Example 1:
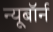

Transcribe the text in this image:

न्यूबॉर्न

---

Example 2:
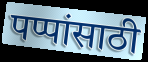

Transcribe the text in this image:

पप्पांसाठी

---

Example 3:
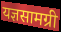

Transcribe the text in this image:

यज्ञसामग्री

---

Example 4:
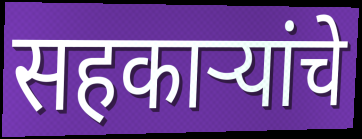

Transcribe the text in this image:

सहकार्‍यांचे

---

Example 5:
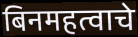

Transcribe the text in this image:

बिनमहत्वाचे